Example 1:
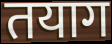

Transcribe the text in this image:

तयाग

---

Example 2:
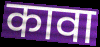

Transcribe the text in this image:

कावा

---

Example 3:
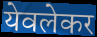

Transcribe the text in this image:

येवलेकर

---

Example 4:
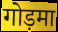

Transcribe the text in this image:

गोड़मा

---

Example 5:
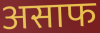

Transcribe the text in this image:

असाफ